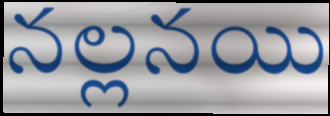
నల్లనయి